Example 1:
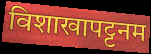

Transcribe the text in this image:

विशाखापट्टनम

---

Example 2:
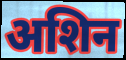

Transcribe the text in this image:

अशिन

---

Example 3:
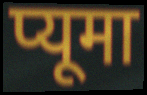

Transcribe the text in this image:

प्यूमा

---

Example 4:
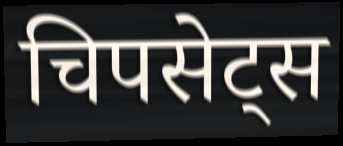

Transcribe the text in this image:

चिपसेट्स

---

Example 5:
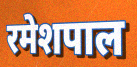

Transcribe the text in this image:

रमेशपाल